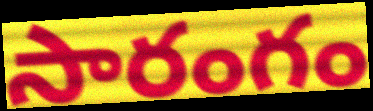
సారంగం